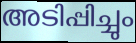
അടിപ്പിച്ചും